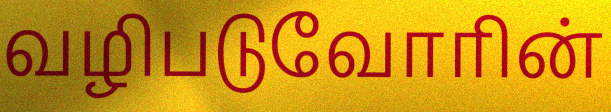
வழிபடுவோரின்